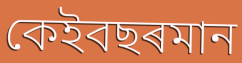
কেইবছৰমান